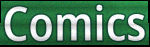
Comics